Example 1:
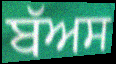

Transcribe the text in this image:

ਬੱਅਸ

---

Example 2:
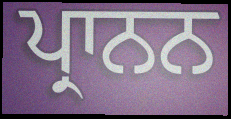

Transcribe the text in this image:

ਪ੍ਰਾਨਨ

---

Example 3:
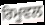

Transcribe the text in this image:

ਰਿਮੂਵਲ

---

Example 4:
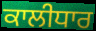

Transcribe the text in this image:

ਕਾਲੀਧਾਰ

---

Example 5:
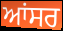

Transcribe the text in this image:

ਆਂਸਰ